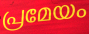
പ്രമേയം